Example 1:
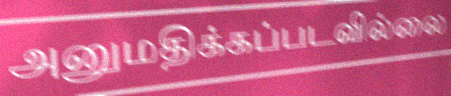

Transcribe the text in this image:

அனுமதிக்கப்படவில்லை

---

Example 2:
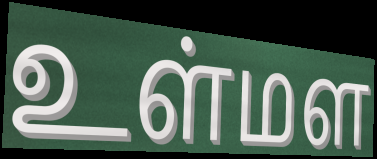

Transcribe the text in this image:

உள்மள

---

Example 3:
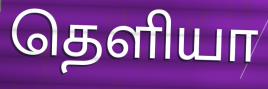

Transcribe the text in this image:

தெளியா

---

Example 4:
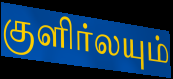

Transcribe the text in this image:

குளிர்லயும்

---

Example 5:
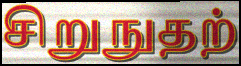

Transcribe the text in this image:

சிறுநுதற்